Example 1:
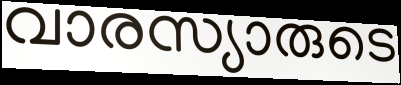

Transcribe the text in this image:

വാരസ്യാരുടെ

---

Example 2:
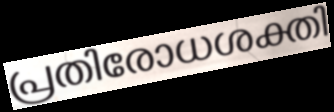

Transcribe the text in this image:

പ്രതിരോധശക്തി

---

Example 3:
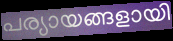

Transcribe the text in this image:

പര്യായങ്ങളായി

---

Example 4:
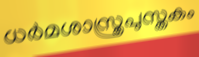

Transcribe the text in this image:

ധർമശാസ്ത്രപുസ്തകം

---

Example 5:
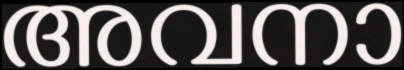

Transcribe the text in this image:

അവനാ